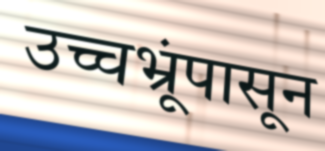
उच्चभ्रूंपासून